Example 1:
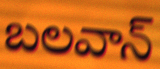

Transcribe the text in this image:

బలవాన్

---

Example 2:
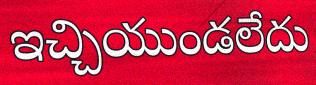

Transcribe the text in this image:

ఇచ్చియుండలేదు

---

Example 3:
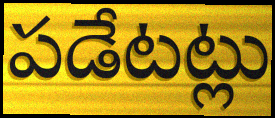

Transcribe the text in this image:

పడేటట్లు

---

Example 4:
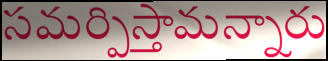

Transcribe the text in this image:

సమర్పిస్తామన్నారు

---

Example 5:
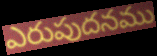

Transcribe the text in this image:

ఎరుపుదనము